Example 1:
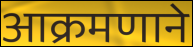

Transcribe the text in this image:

आक्रमणाने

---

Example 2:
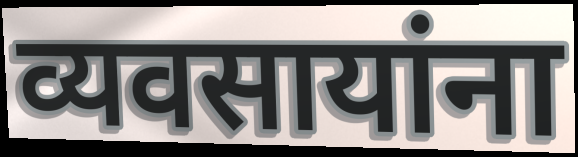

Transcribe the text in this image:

व्यवसायांना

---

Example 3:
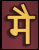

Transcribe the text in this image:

मै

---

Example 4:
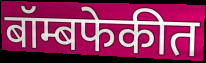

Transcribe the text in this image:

बॉम्बफेकीत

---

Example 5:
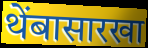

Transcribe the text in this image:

थेंबासारखा